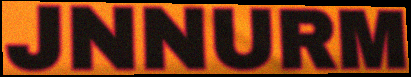
JNNURM